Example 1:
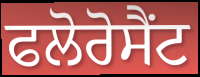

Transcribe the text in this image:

ਫਲੋਰੋਸੈਂਟ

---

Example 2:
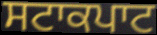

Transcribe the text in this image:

ਸਟਾਕਪਾਟ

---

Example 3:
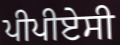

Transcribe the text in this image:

ਪੀਪੀਏਸੀ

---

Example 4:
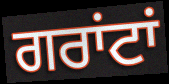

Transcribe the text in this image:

ਗਰਾਂਟਾਂ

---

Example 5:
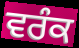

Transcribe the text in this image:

ਵਰੰਕ